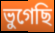
ভুগেছি